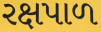
રક્ષપાળ